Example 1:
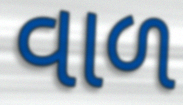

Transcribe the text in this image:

વાળ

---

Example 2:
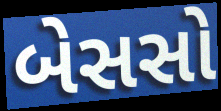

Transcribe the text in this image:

બેસસો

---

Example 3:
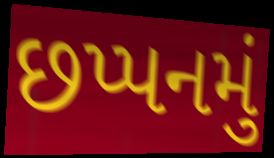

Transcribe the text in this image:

છપ્પનમું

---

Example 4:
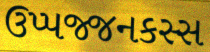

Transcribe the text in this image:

ઉપ્પજ્જનકસ્સ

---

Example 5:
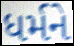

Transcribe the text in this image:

ધર્મને